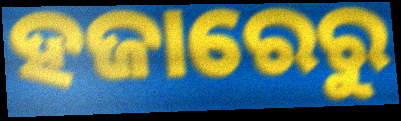
ହଜାରେରୁ